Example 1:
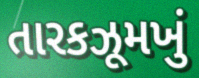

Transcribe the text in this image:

તારકઝૂમખું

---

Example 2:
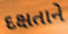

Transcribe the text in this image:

દક્ષતાને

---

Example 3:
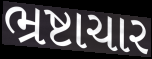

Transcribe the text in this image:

ભ્રષ્ટાચાર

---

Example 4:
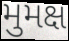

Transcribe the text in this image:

મુમક્ષ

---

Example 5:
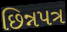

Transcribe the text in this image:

છિન્નપત્ર